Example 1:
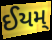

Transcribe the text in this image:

ઈયમ્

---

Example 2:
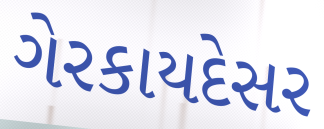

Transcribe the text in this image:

ગેરકાયદેસર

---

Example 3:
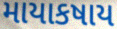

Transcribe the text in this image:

માયાકષાય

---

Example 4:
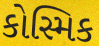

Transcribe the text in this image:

કોસ્મિક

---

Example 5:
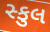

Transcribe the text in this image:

સ્કુલ